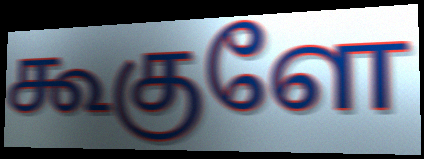
கூகுளே